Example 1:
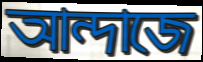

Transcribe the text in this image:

আন্দাজে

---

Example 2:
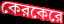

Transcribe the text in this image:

কেরকেরে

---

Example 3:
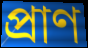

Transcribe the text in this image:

প্রাণ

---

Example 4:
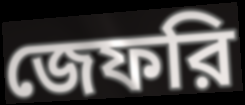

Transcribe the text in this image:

জেফরি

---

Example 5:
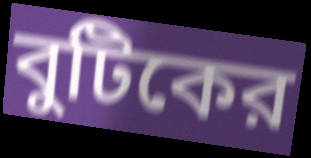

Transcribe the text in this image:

বুটিকের